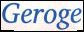
Geroge